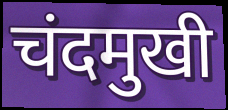
चंदमुखी